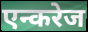
एन्करेज